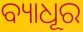
ବ୍ୟାଧୂର